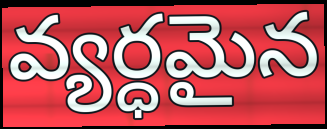
వ్యర్ధమైన